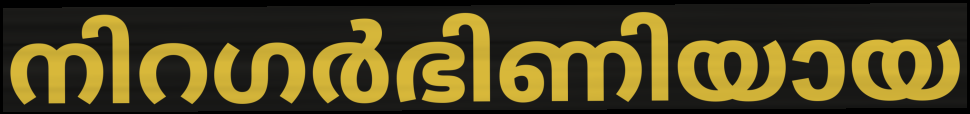
നിറഗർഭിണിയായ